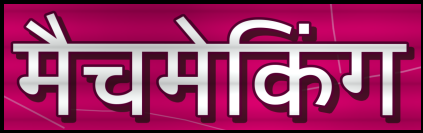
मैचमेकिंग